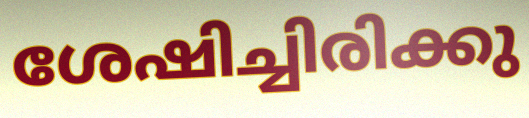
ശേഷിച്ചിരിക്കു